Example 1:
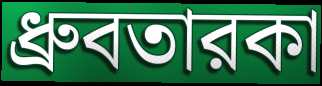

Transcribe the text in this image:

ধ্রুবতারকা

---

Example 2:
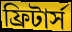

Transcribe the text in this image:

ফ্রিটার্স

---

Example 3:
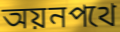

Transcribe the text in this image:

অয়নপথে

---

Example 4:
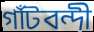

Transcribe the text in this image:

গাঁটবন্দী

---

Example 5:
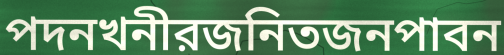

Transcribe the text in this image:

পদনখনীরজনিতজনপাবন